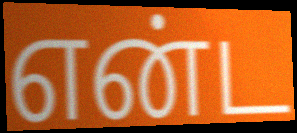
என்ட